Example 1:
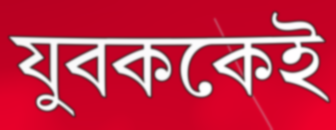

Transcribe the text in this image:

যুবককেই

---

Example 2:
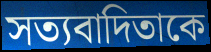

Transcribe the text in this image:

সত্যবাদিতাকে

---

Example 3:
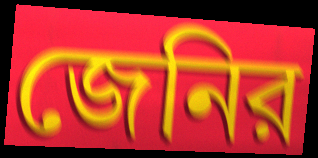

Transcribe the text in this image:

জেনির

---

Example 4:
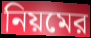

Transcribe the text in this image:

নিয়মের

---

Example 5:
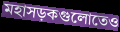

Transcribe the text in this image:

মহাসড়কগুলোতেও